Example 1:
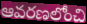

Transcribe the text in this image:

ఆవరణలోంచి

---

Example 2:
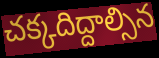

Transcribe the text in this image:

చక్కదిద్దాల్సిన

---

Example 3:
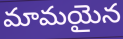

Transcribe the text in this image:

మామయైన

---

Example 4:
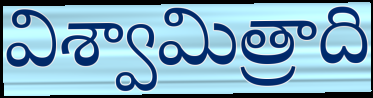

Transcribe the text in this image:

విశ్వామిత్రాది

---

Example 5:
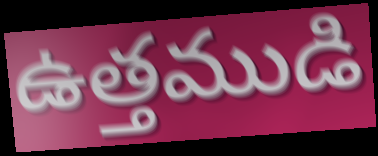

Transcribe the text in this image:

ఉత్తముడి